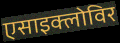
एसाइक्लोविर